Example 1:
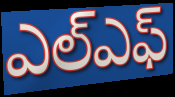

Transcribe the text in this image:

ఎల్ఎఫ్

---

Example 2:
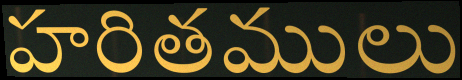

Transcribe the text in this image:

హరితములు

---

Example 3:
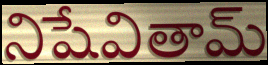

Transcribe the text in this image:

నిషేవితామ్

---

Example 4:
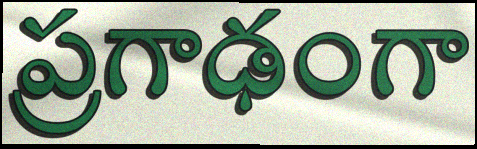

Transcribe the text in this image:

ప్రగాఢంగా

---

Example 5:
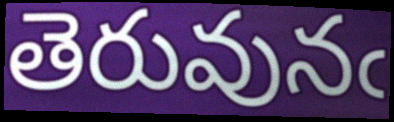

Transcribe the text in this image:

తెరువునఁ